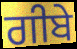
ਗੀਬੇ